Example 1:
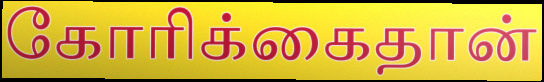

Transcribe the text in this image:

கோரிக்கைதான்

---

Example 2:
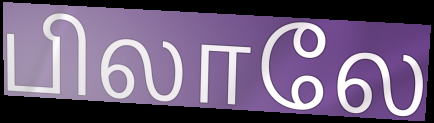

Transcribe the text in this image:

பிலாலே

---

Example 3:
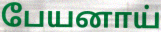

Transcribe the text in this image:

பேயனாய்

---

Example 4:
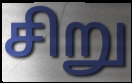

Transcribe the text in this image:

சிறு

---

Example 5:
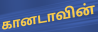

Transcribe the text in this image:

கானடாவின்